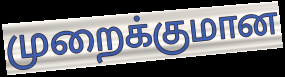
முறைக்குமான